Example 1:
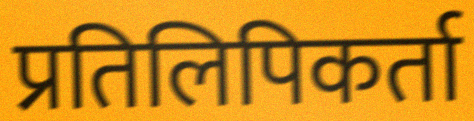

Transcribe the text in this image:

प्रतिलिपिकर्ता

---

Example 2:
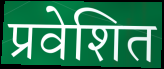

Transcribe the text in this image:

प्रवेशित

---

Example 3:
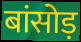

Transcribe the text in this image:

बांसोड़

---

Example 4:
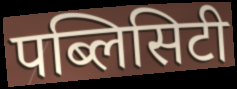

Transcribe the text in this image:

पब्लिसिटी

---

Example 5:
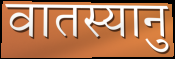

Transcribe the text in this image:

वातस्यानु